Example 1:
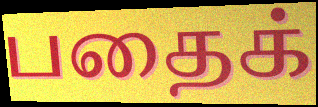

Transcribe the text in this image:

பதைக்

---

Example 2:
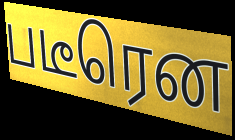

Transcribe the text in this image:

படீரென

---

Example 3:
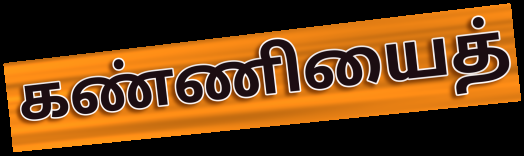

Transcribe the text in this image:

கண்ணியைத்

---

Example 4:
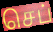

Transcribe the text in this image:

செப்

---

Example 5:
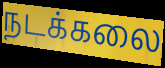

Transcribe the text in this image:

நடக்கலை